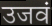
उजवं